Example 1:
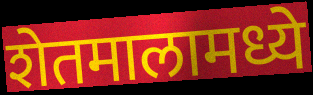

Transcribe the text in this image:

शेतमालामध्ये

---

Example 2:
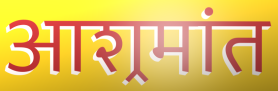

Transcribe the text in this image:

आश्रमांत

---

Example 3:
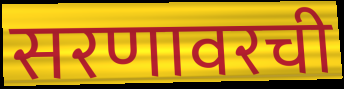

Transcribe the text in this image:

सरणावरची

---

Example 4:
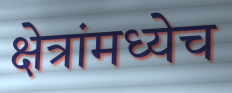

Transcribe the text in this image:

क्षेत्रांमध्येच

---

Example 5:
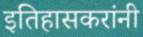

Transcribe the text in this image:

इतिहासकरांनी